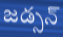
జడ్సన్